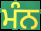
ਮੰਨ